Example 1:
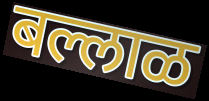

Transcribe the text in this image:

बल्लाळ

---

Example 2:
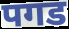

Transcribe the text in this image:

पगड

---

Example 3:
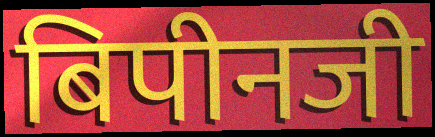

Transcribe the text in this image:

बिपीनजी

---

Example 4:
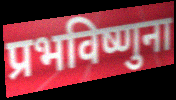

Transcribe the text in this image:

प्रभविष्णुना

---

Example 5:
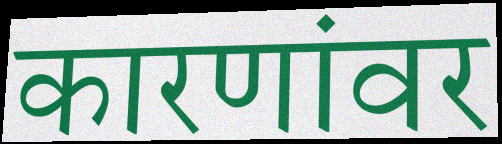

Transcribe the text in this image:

कारणांवर